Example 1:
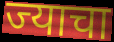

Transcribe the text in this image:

ज्याचा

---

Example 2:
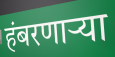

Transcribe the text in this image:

हंबरणाऱ्या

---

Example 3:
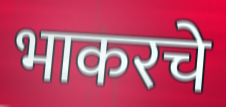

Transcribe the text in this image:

भाकरचे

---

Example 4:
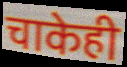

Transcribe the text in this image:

चाकेही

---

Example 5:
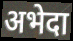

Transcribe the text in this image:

अभेदा